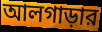
আলগাড়ার